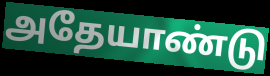
அதேயாண்டு